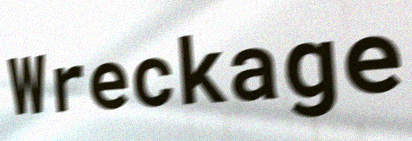
Wreckage